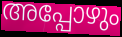
അപ്പോഴും